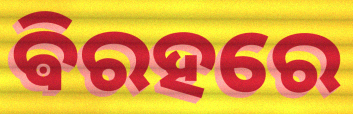
ଵିରହରେ